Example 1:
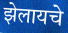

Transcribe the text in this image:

झेलायचे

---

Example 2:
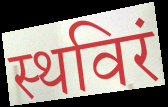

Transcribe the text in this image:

स्थविरं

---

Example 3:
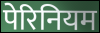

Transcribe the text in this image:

पेरिनियम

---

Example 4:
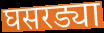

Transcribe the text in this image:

घसरड्या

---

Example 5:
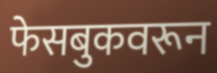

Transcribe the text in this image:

फेसबुकवरून